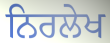
ਨਿਰਲੇਖ